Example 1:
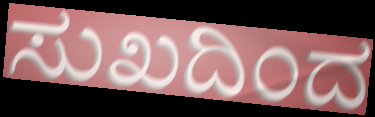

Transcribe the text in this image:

ಸುಖದಿಂದ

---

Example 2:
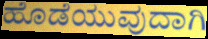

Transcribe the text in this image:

ಹೊಡೆಯುವುದಾಗಿ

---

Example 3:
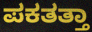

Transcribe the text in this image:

ಪಕತತ್ತಾ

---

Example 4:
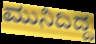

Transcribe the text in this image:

ಮುನಿದಿದ್ದ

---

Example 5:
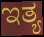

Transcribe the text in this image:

ಇತ್ಯ